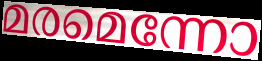
മരമെന്നോ